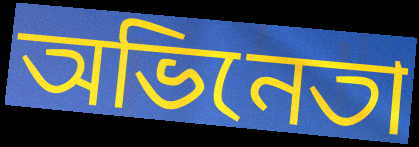
অভিনেতা